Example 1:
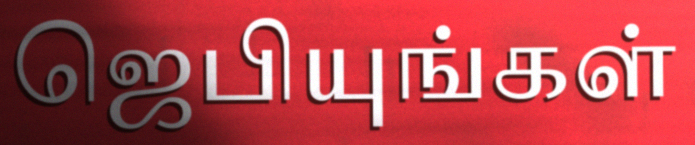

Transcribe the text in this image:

ஜெபியுங்கள்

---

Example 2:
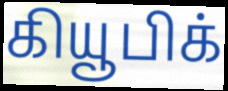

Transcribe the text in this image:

கியூபிக்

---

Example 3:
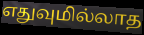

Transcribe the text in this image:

எதுவுமில்லாத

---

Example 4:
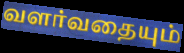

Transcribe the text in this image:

வளர்வதையும்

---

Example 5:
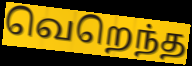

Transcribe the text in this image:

வெறெந்த